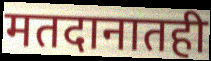
मतदानातही